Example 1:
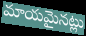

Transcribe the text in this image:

మాయమైనట్లు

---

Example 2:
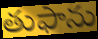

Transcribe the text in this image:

తుఫాను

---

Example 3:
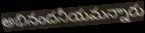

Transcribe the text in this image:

అభినందనీయమన్నారు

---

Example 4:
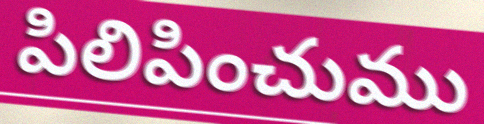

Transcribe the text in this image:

పిలిపించుము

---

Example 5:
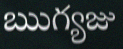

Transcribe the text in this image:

ఋగ్యజు